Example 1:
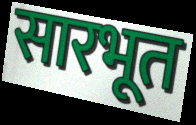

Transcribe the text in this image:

सारभूत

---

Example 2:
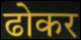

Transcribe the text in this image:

ढोकर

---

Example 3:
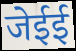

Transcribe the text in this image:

जेईई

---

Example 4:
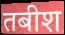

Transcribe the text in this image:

तबीश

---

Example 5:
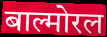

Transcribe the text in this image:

बाल्‍मोरल